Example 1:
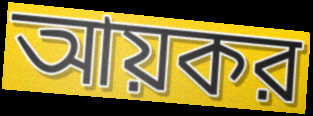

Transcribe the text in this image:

আয়কর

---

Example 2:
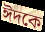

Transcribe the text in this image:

ঈদকে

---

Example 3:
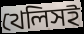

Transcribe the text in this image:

থেলিসই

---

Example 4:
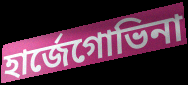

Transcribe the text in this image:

হার্জেগোভিনা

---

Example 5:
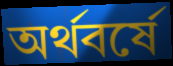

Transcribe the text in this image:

অর্থবর্ষে